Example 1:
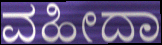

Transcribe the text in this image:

ವಹೀದಾ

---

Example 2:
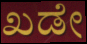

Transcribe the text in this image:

ಖಡೇ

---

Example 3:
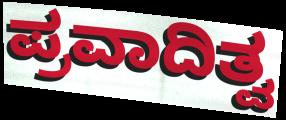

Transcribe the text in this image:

ಪ್ರವಾದಿತ್ವ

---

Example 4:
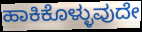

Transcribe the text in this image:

ಹಾಕಿಕೊಳ್ಳುವುದೇ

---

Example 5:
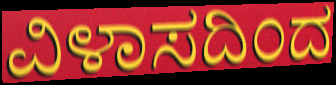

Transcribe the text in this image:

ವಿಳಾಸದಿಂದ